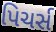
પિચર્સ